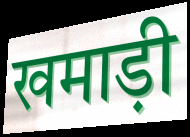
खमाड़ी